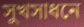
সুখসাধনে